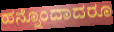
ಹನ್ನೊಂದಾದರೂ